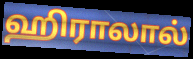
ஹிராலால்